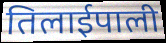
तिलाईपाली